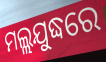
ମଲ୍ଲଯୁଦ୍ଧରେ